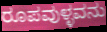
ರೂಪವುಳ್ಳವನು